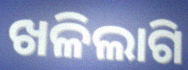
ଖଳିଲାଗି